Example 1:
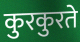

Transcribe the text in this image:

कुरकुरते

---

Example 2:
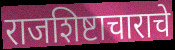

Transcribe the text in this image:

राजशिष्टाचाराचे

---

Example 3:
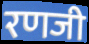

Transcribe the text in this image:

रणजी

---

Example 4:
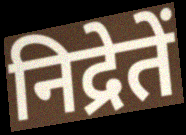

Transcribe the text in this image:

निद्रेतें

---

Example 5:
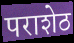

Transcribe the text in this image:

पराशेठ